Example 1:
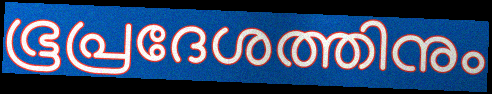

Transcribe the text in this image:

ഭൂപ്രദേശത്തിനും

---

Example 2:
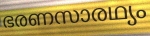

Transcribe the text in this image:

ഭരണസാരഥ്യം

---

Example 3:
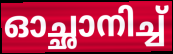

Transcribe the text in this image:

ഓച്ഛാനിച്ച്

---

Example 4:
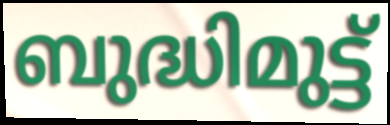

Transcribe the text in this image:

ബുദ്ധിമുട്ട്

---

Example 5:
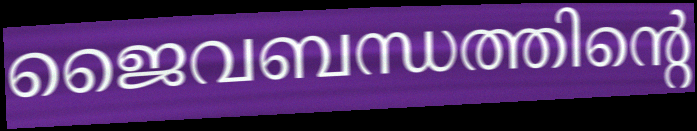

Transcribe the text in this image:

ജൈവബന്ധത്തിന്റെ